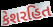
કેશરહિત